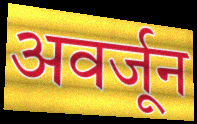
अवर्जून